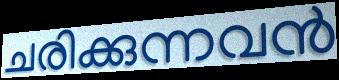
ചരിക്കുന്നവൻ